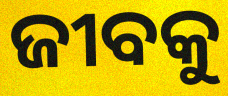
ଜୀବକୁ